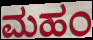
ಮಹಂ